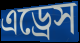
এড্রেস